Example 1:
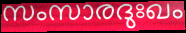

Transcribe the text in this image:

സംസാരദുഃഖം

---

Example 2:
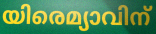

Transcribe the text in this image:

യിരെമ്യാവിന്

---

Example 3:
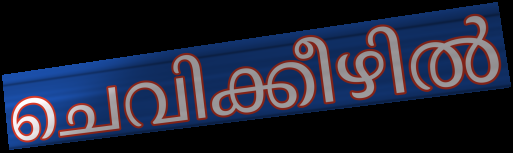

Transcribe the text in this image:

ചെവിക്കീഴിൽ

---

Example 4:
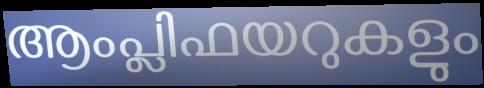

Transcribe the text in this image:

ആംപ്ലിഫയറുകളും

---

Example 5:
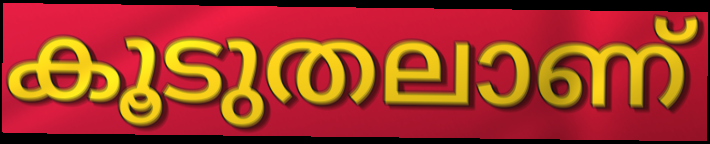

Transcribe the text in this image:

കൂടുതലാണ്